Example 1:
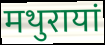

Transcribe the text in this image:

मथुरायां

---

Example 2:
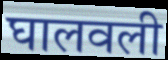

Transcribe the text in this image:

घालवली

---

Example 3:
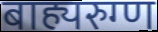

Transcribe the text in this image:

बाह्यरुग्ण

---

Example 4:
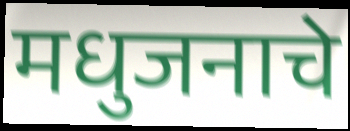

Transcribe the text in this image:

मधुजनाचे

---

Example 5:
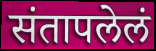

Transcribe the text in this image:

संतापलेलं